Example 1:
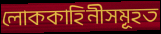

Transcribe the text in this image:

লোককাহিনীসমূহত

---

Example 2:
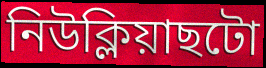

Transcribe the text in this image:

নিউক্লিয়াছটো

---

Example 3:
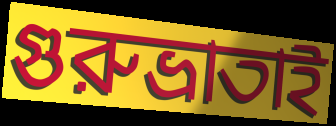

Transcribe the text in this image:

গুৰুভ্ৰাতাই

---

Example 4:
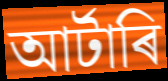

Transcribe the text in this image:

আৰ্টাৰি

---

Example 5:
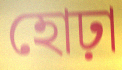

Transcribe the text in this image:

হোঢ়া